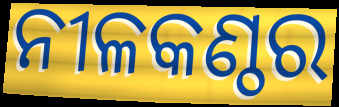
ନୀଳକଣ୍ଠର